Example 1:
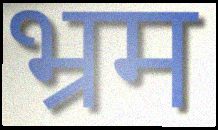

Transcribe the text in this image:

भ्रम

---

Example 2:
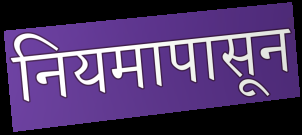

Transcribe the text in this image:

नियमापासून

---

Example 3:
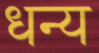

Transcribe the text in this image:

धन्य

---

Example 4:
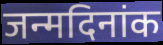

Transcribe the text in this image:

जन्मदिनांक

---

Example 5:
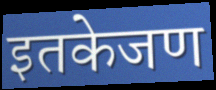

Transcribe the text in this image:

इतकेजण